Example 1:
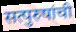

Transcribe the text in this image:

सत्पुरुषांची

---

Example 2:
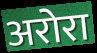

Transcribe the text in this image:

अरोरा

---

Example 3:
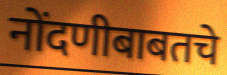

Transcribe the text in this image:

नोंदणीबाबतचे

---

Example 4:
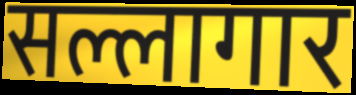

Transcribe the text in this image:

सल्लागार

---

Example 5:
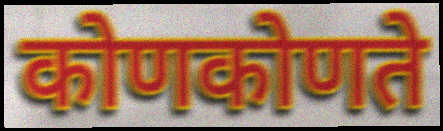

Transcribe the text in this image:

कोणकोणते